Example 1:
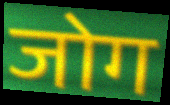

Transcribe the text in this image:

जोग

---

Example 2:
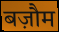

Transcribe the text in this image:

बज़ौम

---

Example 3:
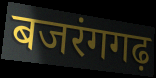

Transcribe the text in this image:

बजरंगगढ़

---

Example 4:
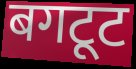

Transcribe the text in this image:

बगटूट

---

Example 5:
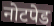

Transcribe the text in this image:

नोटपेड